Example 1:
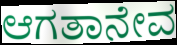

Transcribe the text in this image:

ಆಗತಾನೇವ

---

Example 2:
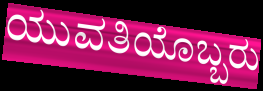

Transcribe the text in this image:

ಯುವತಿಯೊಬ್ಬರು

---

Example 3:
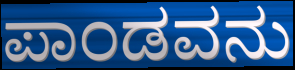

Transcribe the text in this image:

ಪಾಂಡವನು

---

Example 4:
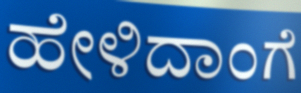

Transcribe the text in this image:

ಹೇಳಿದಾಂಗೆ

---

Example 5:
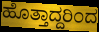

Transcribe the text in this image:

ಹೊತ್ತಾದ್ದರಿಂದ